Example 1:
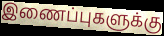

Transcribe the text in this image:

இணைப்புகளுக்கு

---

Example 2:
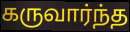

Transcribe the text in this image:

கருவார்ந்த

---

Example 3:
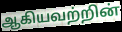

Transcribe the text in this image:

ஆகியவற்றின்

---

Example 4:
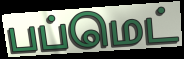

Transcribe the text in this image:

பப்மெட்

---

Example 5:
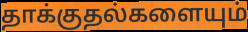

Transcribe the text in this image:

தாக்குதல்களையும்